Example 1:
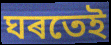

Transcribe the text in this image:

ঘৰতেই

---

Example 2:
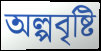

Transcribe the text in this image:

অল্পবৃষ্টি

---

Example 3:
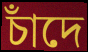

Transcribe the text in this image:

চাঁদে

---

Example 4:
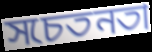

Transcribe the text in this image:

সচেতনতা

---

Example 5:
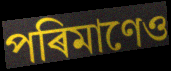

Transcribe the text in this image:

পৰিমাণেও